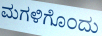
ಮಗಳಿಗೊಂದು